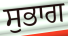
ਸੁਭਾਗ